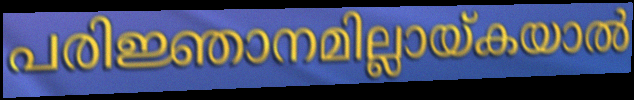
പരിജ്ഞാനമില്ലായ്കയാൽ